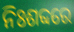
ନିଃଶବ୍ଦରେ